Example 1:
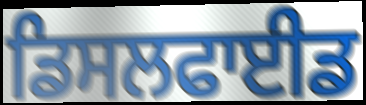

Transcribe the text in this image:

ਡਿਸਲਫਾਈਡ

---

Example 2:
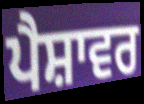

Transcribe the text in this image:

ਪੈਸ਼ਾਵਰ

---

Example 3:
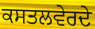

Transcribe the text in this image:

ਕਸਤਲਵੇਰਦੇ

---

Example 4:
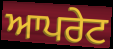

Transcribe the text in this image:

ਆਪਰੇਟ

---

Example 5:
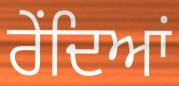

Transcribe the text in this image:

ਰੇਂਦਿਆਂ